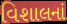
વિશાલનાં